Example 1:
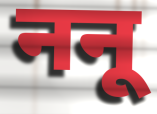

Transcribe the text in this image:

ननू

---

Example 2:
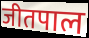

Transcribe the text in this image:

जीतपाल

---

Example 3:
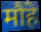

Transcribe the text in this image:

मौहे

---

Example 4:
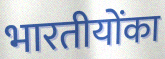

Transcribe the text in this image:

भारतीयोंका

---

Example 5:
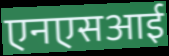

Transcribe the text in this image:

एनएसआई